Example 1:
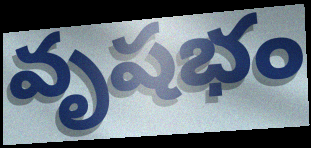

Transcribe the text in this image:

వృషభం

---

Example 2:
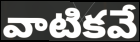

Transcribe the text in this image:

వాటికవే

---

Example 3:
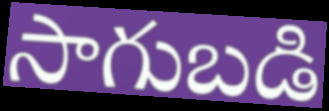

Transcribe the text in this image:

సాగుబడి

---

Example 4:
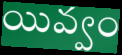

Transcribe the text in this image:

యివ్వం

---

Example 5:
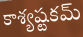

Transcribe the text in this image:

కాశ్యష్టకమ్